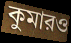
কুমারও